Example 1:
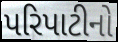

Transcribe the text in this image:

પરિપાટીનો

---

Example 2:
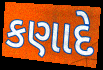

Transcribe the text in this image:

કણાદે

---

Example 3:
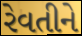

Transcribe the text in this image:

રેવતીને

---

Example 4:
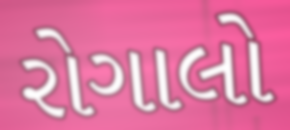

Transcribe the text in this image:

રોગાલો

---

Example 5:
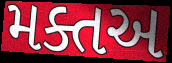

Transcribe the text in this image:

મક્તઅ